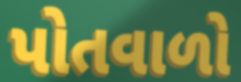
પોતવાળો